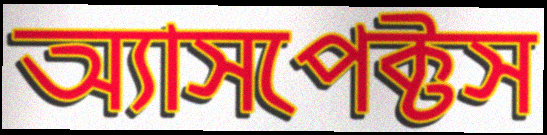
অ্যাসপেক্টস